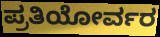
ಪ್ರತಿಯೋರ್ವರ